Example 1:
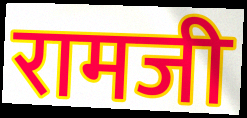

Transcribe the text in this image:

रामजी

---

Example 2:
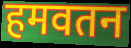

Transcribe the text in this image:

हमवतन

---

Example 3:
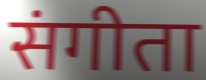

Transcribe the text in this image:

संगीता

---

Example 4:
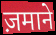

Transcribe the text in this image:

ज़माने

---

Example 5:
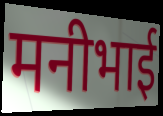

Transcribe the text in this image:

मनीभाई